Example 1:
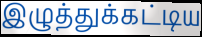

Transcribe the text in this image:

இழுத்துக்கட்டிய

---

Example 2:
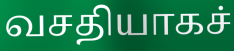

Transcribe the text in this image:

வசதியாகச்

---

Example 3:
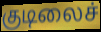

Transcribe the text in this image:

குடிலைச்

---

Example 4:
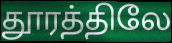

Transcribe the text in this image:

தூரத்திலே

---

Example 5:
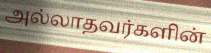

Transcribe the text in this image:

அல்லாதவர்களின்